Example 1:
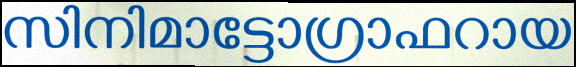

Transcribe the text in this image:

സിനിമാട്ടോഗ്രാഫറായ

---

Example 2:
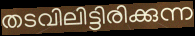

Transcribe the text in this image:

തടവിലിട്ടിരിക്കുന്ന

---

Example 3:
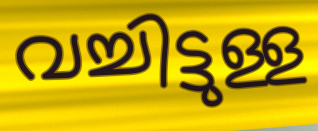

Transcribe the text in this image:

വച്ചിട്ടുള്ള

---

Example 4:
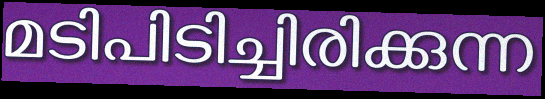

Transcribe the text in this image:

മടിപിടിച്ചിരിക്കുന്ന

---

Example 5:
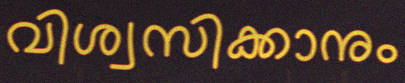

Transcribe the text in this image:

വിശ്വസിക്കാനും